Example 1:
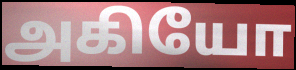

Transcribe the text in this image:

அகியோ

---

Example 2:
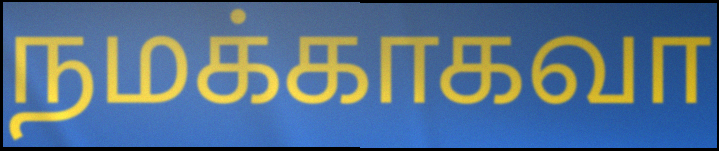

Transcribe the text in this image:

நமக்காகவா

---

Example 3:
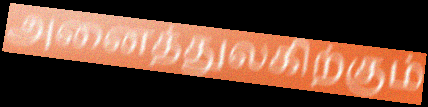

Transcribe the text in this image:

அனைத்துலகிற்கும்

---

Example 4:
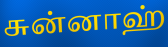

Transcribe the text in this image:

சுன்னாஹ்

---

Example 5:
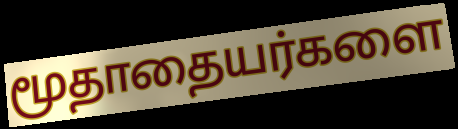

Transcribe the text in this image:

மூதாதையர்களை